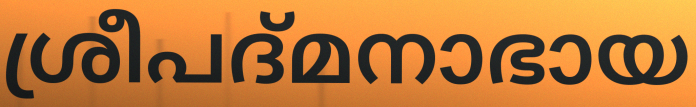
ശ്രീപദ്മനാഭായ